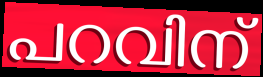
പറവിന്